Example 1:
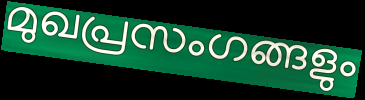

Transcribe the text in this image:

മുഖപ്രസംഗങ്ങളും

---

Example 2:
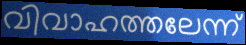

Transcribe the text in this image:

വിവാഹത്തലേന്ന്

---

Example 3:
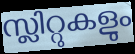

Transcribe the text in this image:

സ്ലിറ്റുകളും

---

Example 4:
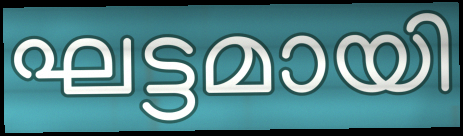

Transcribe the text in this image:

ഘട്ടമായി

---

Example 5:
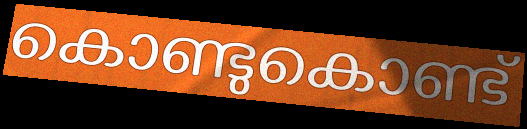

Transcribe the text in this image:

കൊണ്ടുകൊണ്ട്